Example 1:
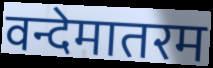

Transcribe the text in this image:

वन्देमातरम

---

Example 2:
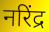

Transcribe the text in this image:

नरिंद्र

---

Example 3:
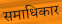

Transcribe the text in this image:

समाधिकार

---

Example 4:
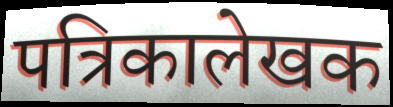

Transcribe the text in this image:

पत्रिकालेखक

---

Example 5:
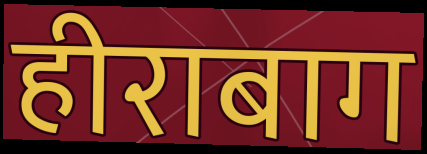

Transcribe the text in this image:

हीराबाग